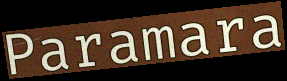
Paramara